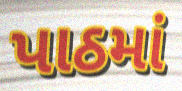
પાઠમાં